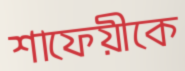
শাফেয়ীকে